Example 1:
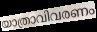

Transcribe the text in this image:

യാത്രാവിവരണം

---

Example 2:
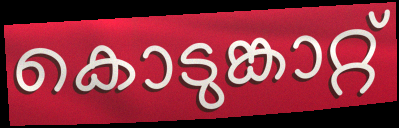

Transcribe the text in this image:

കൊടുങ്കാറ്റ്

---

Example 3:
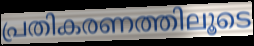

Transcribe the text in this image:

പ്രതികരണത്തിലൂടെ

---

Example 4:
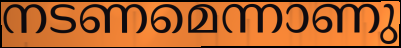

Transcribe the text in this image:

നടണമെന്നാണു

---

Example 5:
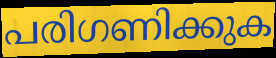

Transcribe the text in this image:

പരിഗണിക്കുക